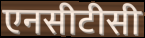
एनसीटीसी